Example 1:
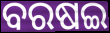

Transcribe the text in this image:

ବରଷଇ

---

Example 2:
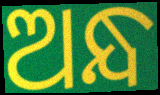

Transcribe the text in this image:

ଅନ୍ଧ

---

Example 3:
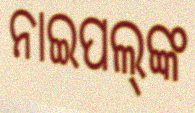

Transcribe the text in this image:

ନାଇପଲ୍‍ଙ୍କ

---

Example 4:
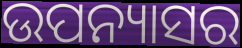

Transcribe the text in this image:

ଉପନ୍ୟାସର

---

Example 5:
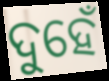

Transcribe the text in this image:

ଦୁହେଁ